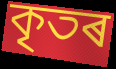
কৃতৰ